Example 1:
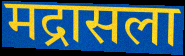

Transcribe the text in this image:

मद्रासला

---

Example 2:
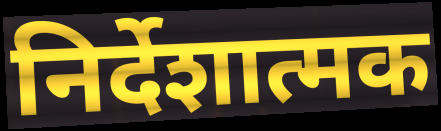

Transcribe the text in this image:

निर्देशात्मक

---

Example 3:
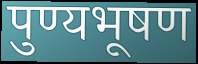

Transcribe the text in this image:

पुण्यभूषण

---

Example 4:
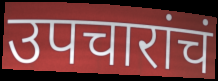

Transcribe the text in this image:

उपचारांचं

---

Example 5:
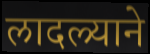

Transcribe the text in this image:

लादल्याने